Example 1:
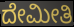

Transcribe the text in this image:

ದೇಮೀತಿ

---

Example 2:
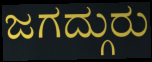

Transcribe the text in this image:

ಜಗದ್ಗುರು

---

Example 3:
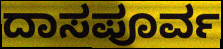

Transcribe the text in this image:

ದಾಸಪೂರ್ವ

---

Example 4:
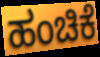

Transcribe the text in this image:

ಹಂಚಿಕೆ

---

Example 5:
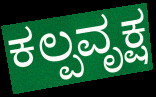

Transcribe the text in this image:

ಕಲ್ಪವೃಕ್ಷ